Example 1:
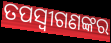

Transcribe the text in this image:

ତପସ୍ୱୀଗଣଙ୍କର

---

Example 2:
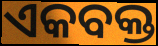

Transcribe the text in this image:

ଏକବକ୍ତ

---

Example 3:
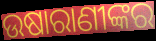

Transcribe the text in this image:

ଉଷାରାଣୀଙ୍କର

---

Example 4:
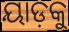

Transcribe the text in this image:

ୟାଡ଼କୁ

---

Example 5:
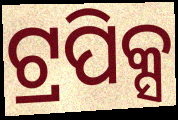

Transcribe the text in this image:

ଟ୍ରପିକ୍ସ